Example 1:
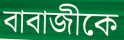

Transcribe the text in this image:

বাবাজীকে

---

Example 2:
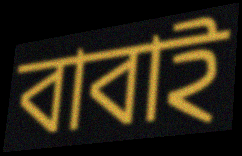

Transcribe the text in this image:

বাবাই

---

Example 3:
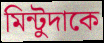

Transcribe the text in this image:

মিন্টুদাকে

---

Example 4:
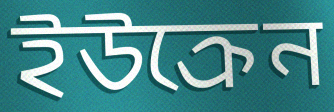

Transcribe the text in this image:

ইউক্রেন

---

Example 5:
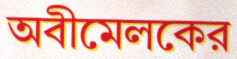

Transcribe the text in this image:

অবীমেলকের